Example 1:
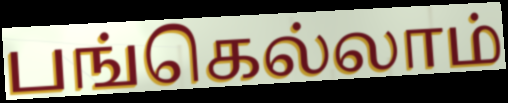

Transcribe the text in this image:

பங்கெல்லாம்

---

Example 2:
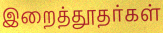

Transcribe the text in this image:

இறைத்தூதர்கள்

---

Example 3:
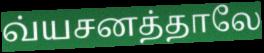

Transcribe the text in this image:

வ்யசனத்தாலே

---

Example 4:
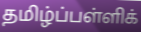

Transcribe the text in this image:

தமிழ்ப்பள்ளிக்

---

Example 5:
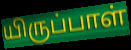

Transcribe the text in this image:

யிருப்பாள்